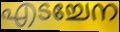
എടച്ചേന